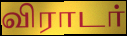
விராடர்